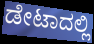
ಡೇಟಾದಲ್ಲಿ